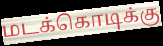
மடக்கொடிக்கு